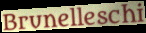
Brunelleschi